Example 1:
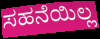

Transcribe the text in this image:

ಸಹನೆಯಿಲ್ಲ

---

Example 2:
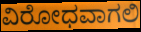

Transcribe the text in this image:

ವಿರೋಧವಾಗಲಿ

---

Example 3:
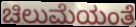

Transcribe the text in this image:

ಚಿಲುಮೆಯಂತೆ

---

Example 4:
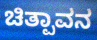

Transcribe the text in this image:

ಚಿತ್ಪಾವನ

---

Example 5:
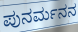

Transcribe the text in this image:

ಪುನರ್ಮನನ